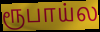
ரூபாய்ல